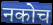
नकोच